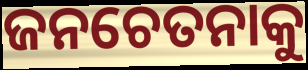
ଜନଚେତନାକୁ